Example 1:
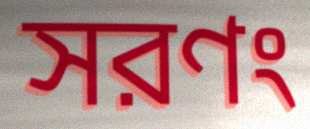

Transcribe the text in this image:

সরণং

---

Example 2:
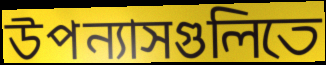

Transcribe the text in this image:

উপন্যাসগুলিতে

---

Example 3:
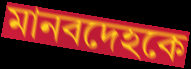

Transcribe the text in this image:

মানবদেহকে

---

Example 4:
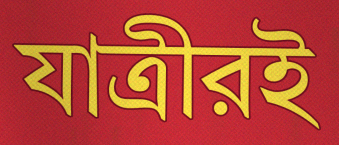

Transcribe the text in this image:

যাত্রীরই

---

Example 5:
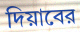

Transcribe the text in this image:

দিয়াবের